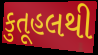
કુતૂહલથી